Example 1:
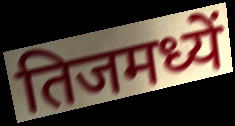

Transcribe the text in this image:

तिजमध्यें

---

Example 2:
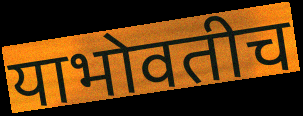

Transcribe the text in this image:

याभोवतीच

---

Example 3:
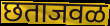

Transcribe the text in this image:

छताजवळ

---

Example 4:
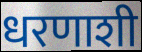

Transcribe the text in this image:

धरणाशी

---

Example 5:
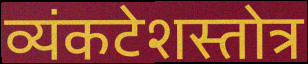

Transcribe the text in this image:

व्यंकटेशस्तोत्र